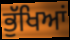
ਭੁੱਖਿਆਂ